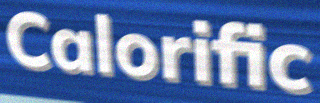
Calorific